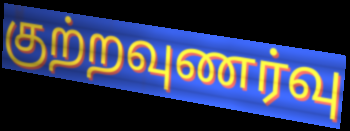
குற்றவுணர்வு